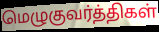
மெழுகுவர்த்திகள்